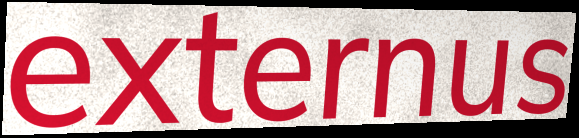
externus